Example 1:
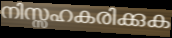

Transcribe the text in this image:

നിസ്സഹകരിക്കുക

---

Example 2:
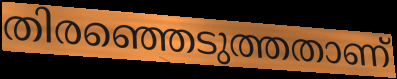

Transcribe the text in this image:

തിരഞ്ഞെടുത്തതാണ്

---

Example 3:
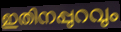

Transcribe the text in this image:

ഇതിനപ്പുറവും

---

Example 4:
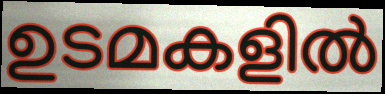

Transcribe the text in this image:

ഉടമകളിൽ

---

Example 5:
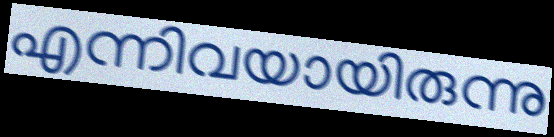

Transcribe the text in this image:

എന്നിവയായിരുന്നു